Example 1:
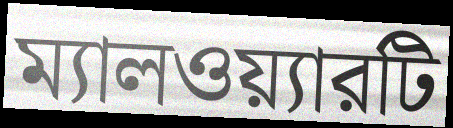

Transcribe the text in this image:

ম্যালওয়্যারটি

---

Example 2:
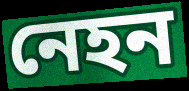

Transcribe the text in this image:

নেহন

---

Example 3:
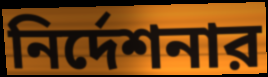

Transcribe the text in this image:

নির্দেশনার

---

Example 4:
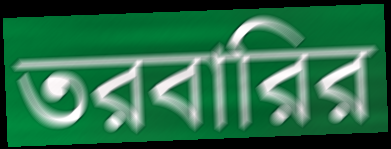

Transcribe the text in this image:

তরবারির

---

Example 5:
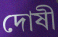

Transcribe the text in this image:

দোষী